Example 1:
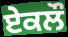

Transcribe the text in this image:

ਏਕਲੌ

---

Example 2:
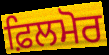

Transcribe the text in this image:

ਫ਼ਿਲਮੋਰ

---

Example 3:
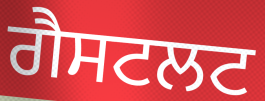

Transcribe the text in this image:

ਗੈਸਟਲਟ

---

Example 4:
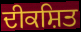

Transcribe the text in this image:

ਦੀਕਸ਼ਿਤ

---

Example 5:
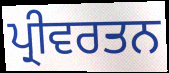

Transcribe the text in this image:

ਪ੍ਰੀਵਰਤਨ